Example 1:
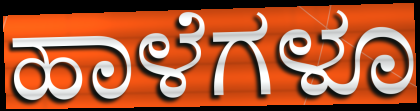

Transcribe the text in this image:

ಹಾಳೆಗಳೂ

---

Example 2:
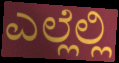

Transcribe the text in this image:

ಎಲ್ಲೆಲ್ಲಿ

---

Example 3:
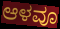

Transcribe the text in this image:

ಆಳವೂ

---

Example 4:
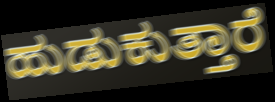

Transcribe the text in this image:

ಹುಡುಕುತ್ತಾರೆ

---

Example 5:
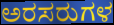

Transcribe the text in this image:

ಅರಸರುಗಳ